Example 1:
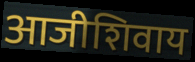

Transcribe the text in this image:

आजीशिवाय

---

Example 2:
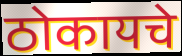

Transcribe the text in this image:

ठोकायचे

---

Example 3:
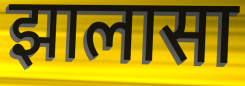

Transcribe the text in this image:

झालासा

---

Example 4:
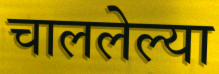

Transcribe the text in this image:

चाललेल्या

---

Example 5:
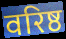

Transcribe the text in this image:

वरिष्ठ